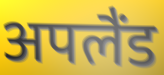
अपलैंड